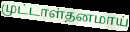
முட்டாள்தனமாய்